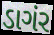
ડાગંર